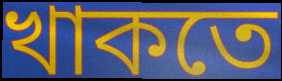
খাকতে